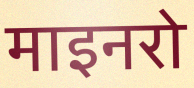
माइनरो